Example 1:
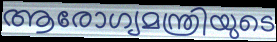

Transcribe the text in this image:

ആരോഗ്യമന്ത്രിയുടെ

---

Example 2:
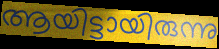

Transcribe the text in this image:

ആയിട്ടായിരുന്നു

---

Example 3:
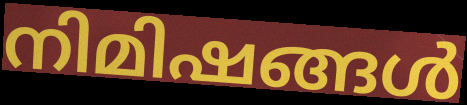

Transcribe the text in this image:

നിമിഷങ്ങൾ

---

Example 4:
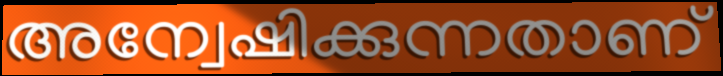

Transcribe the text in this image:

അന്വേഷിക്കുന്നതാണ്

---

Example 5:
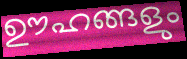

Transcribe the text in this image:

ഊഹങ്ങളും